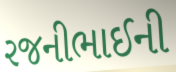
રજનીભાઈની